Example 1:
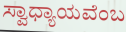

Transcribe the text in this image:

ಸ್ವಾಧ್ಯಾಯವೆಂಬ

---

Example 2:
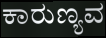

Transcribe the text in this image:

ಕಾರುಣ್ಯವ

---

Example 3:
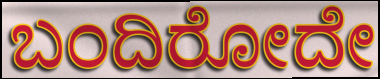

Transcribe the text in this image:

ಬಂದಿರೋದೇ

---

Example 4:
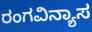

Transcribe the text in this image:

ರಂಗವಿನ್ಯಾಸ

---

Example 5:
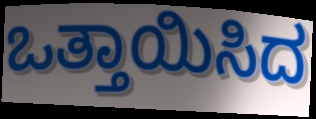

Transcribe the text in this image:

ಒತ್ತಾಯಿಸಿದ